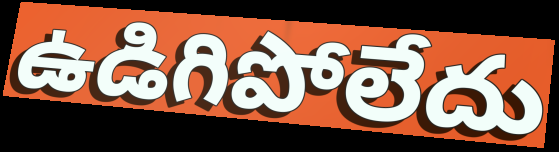
ఉడిగిపోలేదు